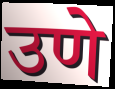
उणे